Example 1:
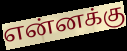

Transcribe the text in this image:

என்னக்கு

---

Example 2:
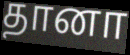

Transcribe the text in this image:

தானா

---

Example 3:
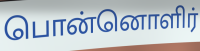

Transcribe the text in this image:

பொன்னொளிர்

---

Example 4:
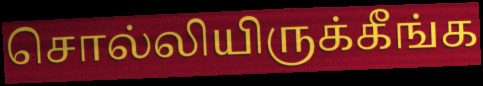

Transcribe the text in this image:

சொல்லியிருக்கீங்க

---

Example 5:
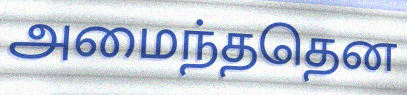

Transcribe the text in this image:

அமைந்ததென